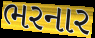
ભરનાર